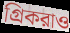
গ্রিকরাও